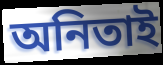
অনিতাই